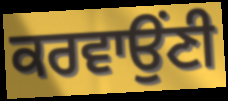
ਕਰਵਾਉਂਣੀ